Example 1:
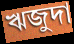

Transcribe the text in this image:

ঋজুদা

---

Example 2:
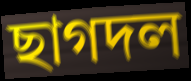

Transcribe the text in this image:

ছাগদল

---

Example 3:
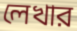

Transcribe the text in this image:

লেখার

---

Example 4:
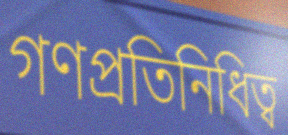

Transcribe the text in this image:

গণপ্রতিনিধিত্ব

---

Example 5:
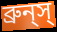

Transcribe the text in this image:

ব্রুন্‌স্